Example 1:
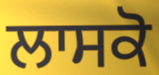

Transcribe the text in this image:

ਲਾਸਕੋ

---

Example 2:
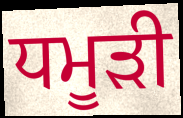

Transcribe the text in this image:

ਧਮੂੜੀ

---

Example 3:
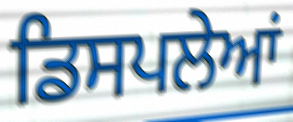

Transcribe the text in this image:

ਡਿਸਪਲੇਆਂ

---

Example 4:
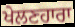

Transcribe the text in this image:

ਖੇਲਣਹਾਰਾ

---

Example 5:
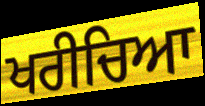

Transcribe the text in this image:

ਖਰੀਚਿਆ